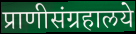
प्राणीसंग्रहालये